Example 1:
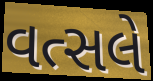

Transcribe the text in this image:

વત્સલે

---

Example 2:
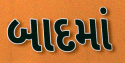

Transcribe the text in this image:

બાદમાં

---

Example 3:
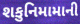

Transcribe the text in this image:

શકુનિમામાની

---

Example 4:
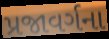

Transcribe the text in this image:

પ્રજાવર્ગના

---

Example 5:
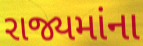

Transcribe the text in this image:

રાજ્યમાંના